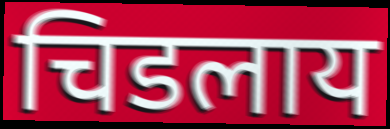
चिडलाय